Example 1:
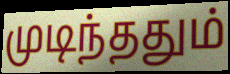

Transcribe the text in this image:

முடிந்ததும்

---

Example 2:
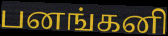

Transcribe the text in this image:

பனங்கனி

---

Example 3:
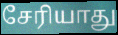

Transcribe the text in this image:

சேரியாது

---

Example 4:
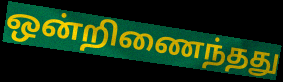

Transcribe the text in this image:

ஒன்றிணைந்தது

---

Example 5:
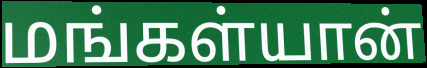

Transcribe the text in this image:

மங்கள்யான்